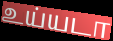
உய்யடா